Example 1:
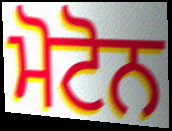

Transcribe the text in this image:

ਮੋਟੋਨ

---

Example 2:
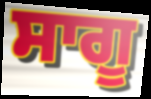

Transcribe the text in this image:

ਸਾਗੂ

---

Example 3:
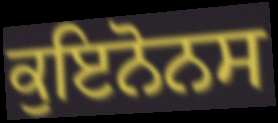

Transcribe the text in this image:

ਕੁਇਨੋਨਸ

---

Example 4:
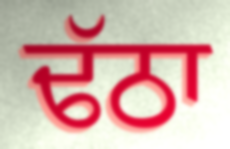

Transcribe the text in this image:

ਢੱਠਾ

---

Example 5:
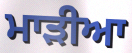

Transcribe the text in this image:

ਮਾੜੀਆ